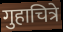
गुहाचित्रे